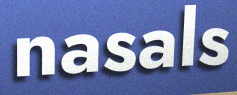
nasals